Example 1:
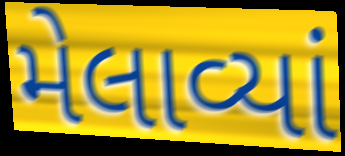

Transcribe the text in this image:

મેલાવ્યાં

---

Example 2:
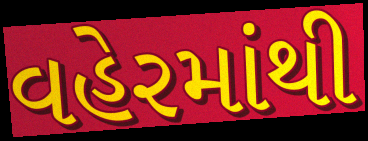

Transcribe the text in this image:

વહેરમાંથી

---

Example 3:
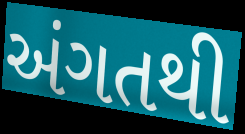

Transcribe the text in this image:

અંગતથી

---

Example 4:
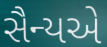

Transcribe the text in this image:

સૈન્યએ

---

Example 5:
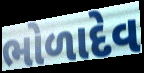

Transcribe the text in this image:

ભોળાદેવ